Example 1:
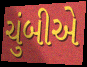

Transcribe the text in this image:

ચુંબીએ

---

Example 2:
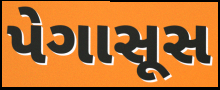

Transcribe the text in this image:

પેગાસૂસ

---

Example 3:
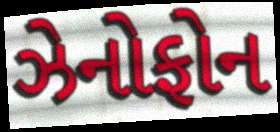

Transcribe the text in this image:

ઝેનોફોન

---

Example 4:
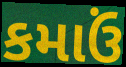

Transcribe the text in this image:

કમાઉં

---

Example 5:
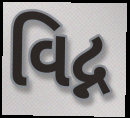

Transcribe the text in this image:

વિદ્ન